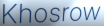
Khosrow